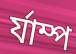
র্যাম্প